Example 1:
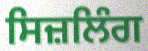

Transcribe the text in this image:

ਸਿਜ਼ਲਿੰਗ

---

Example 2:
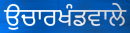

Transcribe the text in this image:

ਉਚਾਰਖੰਡਵਾਲੇ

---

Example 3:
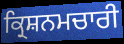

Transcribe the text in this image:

ਕ੍ਰਿਸ਼ਨਮਚਾਰੀ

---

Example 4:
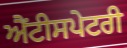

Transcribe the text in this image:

ਐਂਟੀਸਪੇਟਰੀ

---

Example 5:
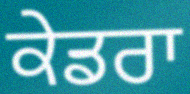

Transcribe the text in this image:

ਕੇਡਰਾ